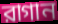
রাগান